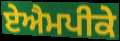
ਏਐਮਪੀਕੇ